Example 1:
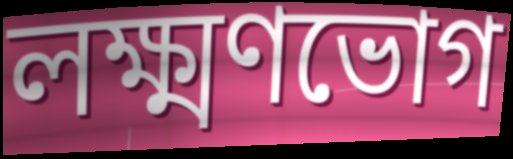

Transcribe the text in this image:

লক্ষ্মণভোগ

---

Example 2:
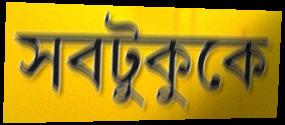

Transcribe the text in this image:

সবটুকুকে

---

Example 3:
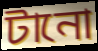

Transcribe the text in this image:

টানো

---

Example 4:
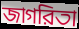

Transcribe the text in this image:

জাগরিতা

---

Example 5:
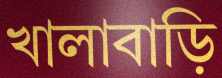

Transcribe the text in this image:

খালাবাড়ি